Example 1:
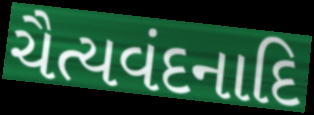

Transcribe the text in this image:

ચૈત્યવંદનાદિ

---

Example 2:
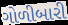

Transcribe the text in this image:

ગોળીબારી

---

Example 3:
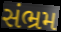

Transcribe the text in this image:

સંભ્રમ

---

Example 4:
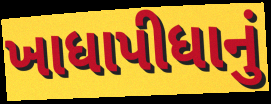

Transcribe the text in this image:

ખાધાપીધાનું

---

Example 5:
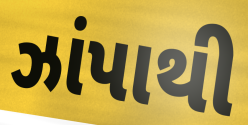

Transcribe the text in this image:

ઝાંપાથી